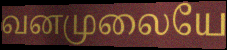
வனமுலையே